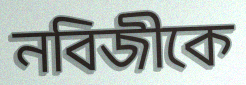
নবিজীকে